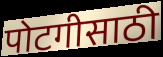
पोटगीसाठी